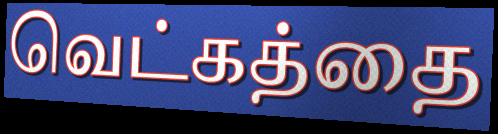
வெட்கத்தை